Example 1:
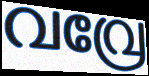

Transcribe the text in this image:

വവ്രേ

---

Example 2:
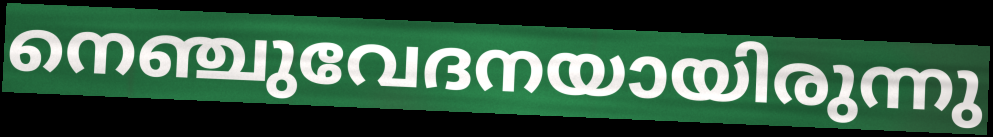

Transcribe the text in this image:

നെഞ്ചുവേദനയായിരുന്നു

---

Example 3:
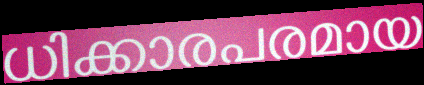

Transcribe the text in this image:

ധിക്കാരപരമായ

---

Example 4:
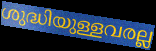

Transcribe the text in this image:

ശുദ്ധിയുള്ളവരല്ല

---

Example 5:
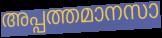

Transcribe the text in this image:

അപ്പത്തമാനസാ